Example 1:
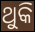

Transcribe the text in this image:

ଥୁକି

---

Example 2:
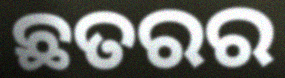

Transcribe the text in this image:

ଛତରର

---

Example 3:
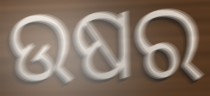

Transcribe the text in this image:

ଉଷର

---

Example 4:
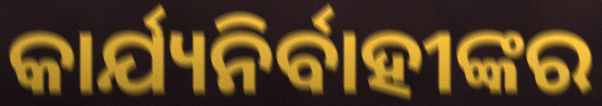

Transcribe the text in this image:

କାର୍ଯ୍ୟନିର୍ବାହୀଙ୍କର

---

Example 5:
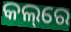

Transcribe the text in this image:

କଲ୍‌ରେ